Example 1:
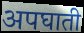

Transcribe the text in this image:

अपघाती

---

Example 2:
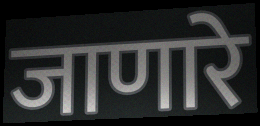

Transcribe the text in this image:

जाणारे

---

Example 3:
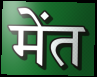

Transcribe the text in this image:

मेंत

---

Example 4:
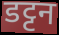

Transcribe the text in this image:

डट्टन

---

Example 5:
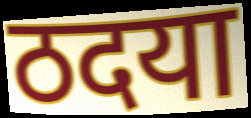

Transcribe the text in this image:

ठदया